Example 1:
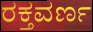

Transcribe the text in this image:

ರಕ್ತವರ್ಣ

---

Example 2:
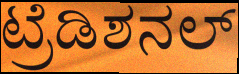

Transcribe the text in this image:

ಟ್ರೆಡಿಶನಲ್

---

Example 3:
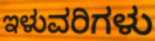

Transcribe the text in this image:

ಇಳುವರಿಗಳು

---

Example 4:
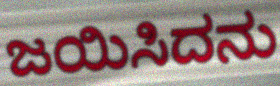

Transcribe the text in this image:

ಜಯಿಸಿದನು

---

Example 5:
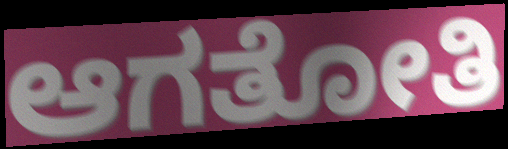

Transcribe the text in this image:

ಆಗತೋತಿ